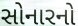
સોનારનો